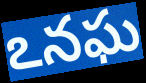
ఽనఘ